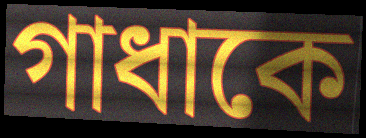
গাধাকে